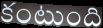
కంటుంది